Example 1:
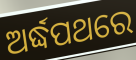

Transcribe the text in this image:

ଅର୍ଦ୍ଧପଥରେ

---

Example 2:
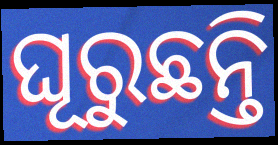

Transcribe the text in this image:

ଘୂରୁଛନ୍ତି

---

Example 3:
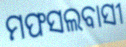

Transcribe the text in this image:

ମଫସଲବାସୀ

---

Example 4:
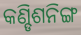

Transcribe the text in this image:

କଣ୍ଡିଶନିଙ୍ଗ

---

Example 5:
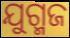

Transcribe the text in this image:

ଯୁଗ୍ମଜ